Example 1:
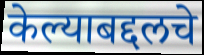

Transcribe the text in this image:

केल्याबद्दलचे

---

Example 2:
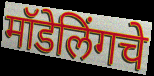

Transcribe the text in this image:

मॉडेलिंगचे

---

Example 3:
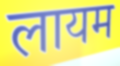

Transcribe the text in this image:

लायम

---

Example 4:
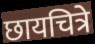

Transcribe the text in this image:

छायचित्रे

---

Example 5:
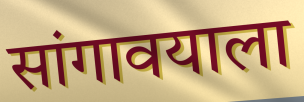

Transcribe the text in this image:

सांगावयाला